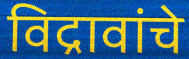
विद्रावांचे